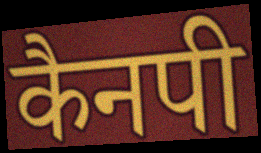
कैनपी